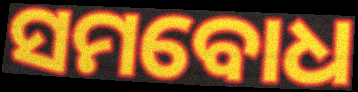
ସମବୋଧ